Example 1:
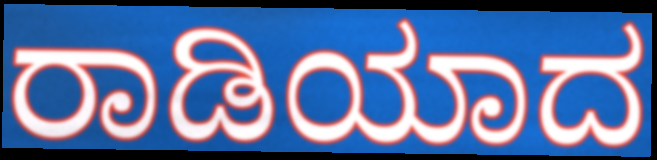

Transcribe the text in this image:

ರಾಡಿಯಾದ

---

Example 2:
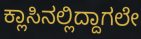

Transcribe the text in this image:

ಕ್ಲಾಸಿನಲ್ಲಿದ್ದಾಗಲೇ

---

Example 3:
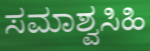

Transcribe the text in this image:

ಸಮಾಶ್ವಸಿಹಿ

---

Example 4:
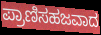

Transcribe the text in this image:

ಪ್ರಾಣಿಸಹಜವಾದ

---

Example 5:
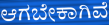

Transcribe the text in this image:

ಆಗಬೇಕಾಗಿವೆ